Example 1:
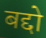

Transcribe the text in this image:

बद्दो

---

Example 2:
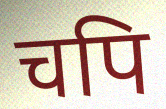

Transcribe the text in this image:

चपि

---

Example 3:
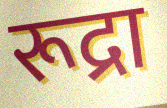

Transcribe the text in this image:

रूद्रा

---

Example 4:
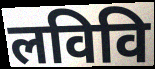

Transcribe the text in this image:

लविवि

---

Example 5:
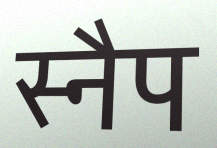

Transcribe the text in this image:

स्नैप